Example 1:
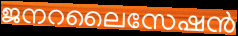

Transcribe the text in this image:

ജനറലൈസേഷൻ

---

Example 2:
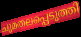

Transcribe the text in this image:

ചുമതലപ്പെടുത്തി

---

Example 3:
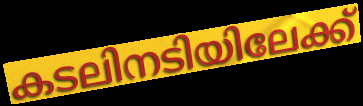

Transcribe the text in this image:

കടലിനടിയിലേക്ക്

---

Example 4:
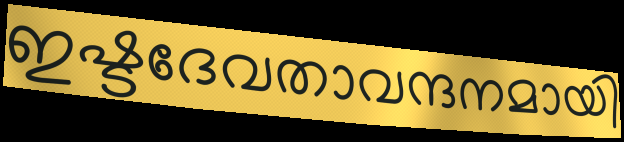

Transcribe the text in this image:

ഇഷ്ടദേവതാവന്ദനമായി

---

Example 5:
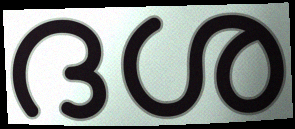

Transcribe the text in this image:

ദശ